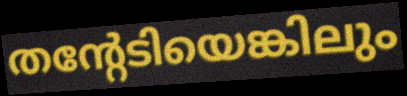
തന്റേടിയെങ്കിലും